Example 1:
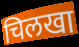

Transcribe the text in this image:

चिलखा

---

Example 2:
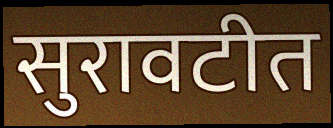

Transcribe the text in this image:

सुरावटीत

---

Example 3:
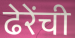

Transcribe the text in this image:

ढेरेंची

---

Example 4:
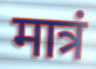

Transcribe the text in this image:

मात्रं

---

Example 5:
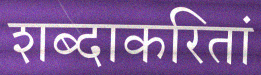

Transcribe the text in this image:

शब्दाकरितां